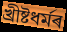
খ্ৰীষ্টধৰ্মৰ